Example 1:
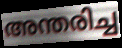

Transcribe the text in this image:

അന്തരിച്ച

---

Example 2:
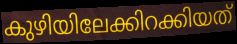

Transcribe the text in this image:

കുഴിയിലേക്കിറക്കിയത്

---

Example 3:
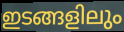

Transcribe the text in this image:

ഇടങ്ങളിലും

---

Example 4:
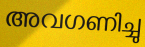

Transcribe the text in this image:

അവഗണിച്ചു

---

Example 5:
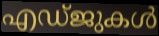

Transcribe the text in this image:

എഡ്ജുകൾ